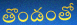
తొండంతో